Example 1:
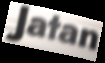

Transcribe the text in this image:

Jatan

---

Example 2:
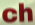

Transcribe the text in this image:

ch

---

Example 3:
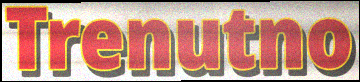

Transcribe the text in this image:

Trenutno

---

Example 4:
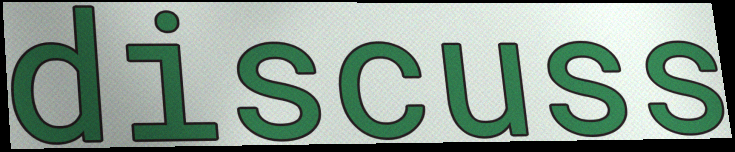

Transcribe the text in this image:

discuss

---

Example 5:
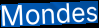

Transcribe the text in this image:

Mondes